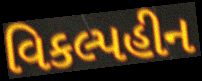
વિકલ્પહીન